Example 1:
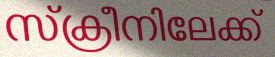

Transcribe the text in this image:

സ്‌ക്രീനിലേക്ക്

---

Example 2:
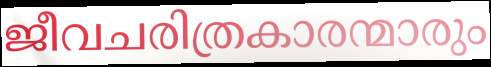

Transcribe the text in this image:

ജീവചരിത്രകാരന്മാരും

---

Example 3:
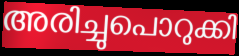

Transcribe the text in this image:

അരിച്ചുപൊറുക്കി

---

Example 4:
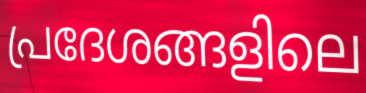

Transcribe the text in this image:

പ്രദേശങ്ങളിലെ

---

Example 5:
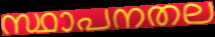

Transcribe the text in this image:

സ്ഥാപനതല